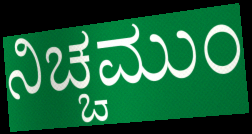
ನಿಚ್ಚಮುಂ